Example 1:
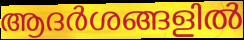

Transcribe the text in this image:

ആദർശങ്ങളിൽ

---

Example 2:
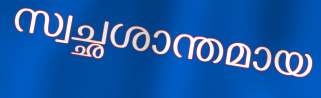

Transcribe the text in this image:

സ്വച്ഛശാന്തമായ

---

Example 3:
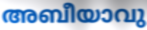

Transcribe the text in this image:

അബീയാവു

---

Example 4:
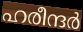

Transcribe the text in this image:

ഹരീന്ദർ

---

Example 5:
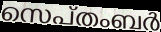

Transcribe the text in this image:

സെപ്‌തംബർ